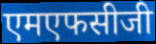
एमएफसीजी